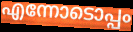
എന്നോടൊപ്പം